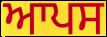
ਆਪਸ